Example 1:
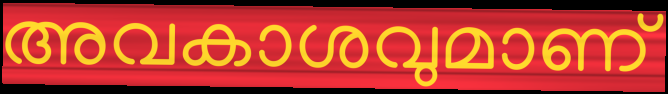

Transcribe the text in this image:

അവകാശവുമാണ്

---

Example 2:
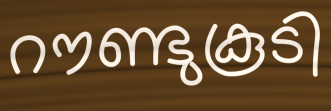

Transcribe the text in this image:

റൗണ്ടുകൂടി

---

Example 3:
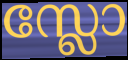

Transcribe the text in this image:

സ്ലോ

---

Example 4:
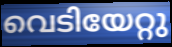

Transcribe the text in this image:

വെടിയേറ്റു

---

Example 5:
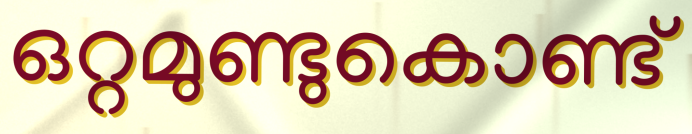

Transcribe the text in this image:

ഒറ്റമുണ്ടുകൊണ്ട്